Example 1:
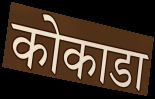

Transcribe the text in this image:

कोकाडा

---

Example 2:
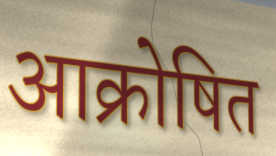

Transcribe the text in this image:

आक्रोषित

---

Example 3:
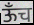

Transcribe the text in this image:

ऊँच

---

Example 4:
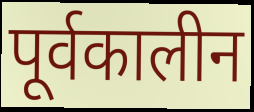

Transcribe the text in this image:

पूर्वकालीन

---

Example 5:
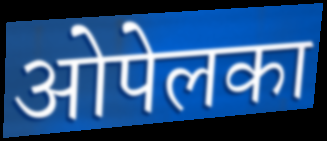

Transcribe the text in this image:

ओपेलका